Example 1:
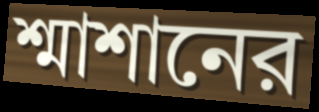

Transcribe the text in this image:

শ্মাশানের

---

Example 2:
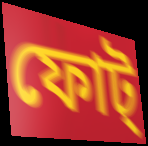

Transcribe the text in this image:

ফোট্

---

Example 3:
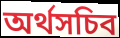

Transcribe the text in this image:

অর্থসচিব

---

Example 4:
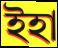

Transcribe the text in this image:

ইহা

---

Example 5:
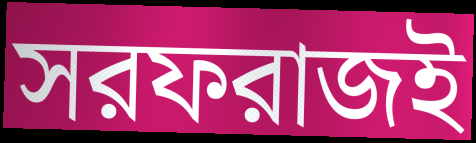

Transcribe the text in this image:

সরফরাজই